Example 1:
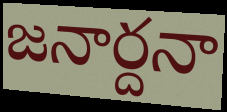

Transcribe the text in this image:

జనార్దనా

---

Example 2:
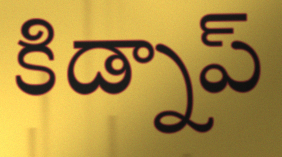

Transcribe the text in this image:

కిడ్నాప్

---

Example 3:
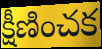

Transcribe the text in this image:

క్షీణించక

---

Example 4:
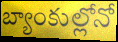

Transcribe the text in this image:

బ్యాంకుల్లోనో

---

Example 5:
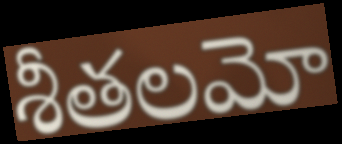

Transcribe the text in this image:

శీతలమో